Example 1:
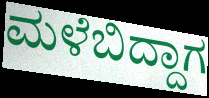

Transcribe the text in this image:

ಮಳೆಬಿದ್ದಾಗ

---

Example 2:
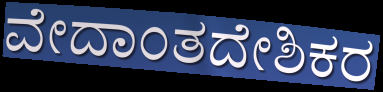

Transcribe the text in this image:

ವೇದಾಂತದೇಶಿಕರ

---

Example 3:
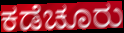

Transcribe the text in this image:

ಕಡೆಚೂರು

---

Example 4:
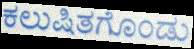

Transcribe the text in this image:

ಕಲುಷಿತಗೊಂಡು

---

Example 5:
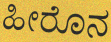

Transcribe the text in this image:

ಹೀರೊನ